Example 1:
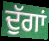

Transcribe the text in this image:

ਦੁੱਗਾਂ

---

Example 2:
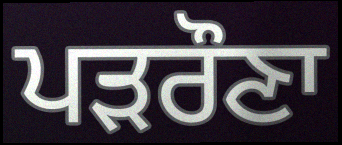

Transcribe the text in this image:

ਪੜਰੌਣਾ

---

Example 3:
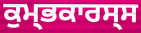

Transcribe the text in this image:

ਕੁਮ੍ਭਕਾਰਸ੍ਸ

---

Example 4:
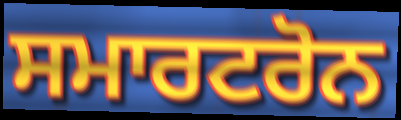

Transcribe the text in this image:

ਸਮਾਰਟਰੋਨ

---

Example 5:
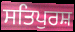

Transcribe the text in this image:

ਸਤਿਪੁਰਸ਼